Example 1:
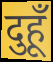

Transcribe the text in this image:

दुहूँ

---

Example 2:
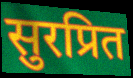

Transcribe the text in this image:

सुरप्रित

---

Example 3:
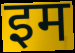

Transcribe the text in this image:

इम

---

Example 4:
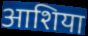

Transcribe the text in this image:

आशिया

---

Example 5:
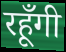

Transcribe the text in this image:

रहूँगी